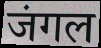
जंगल